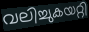
വലിച്ചുകയറ്റി